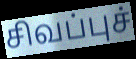
சிவப்புச்